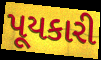
પૂયકારી